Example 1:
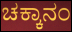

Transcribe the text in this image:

ಚಕ್ಕಾನಂ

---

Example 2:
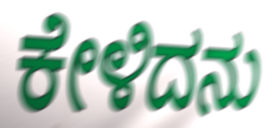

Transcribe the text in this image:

ಕೇಳಿದನು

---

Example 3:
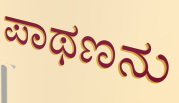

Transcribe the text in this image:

ಪಾಥಣನು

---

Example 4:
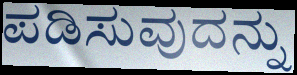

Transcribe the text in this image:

ಪಡಿಸುವುದನ್ನು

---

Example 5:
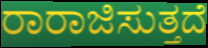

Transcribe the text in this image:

ರಾರಾಜಿಸುತ್ತದೆ